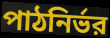
পাঠনির্ভর